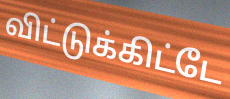
விட்டுக்கிட்டே